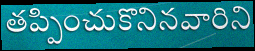
తప్పించుకొనినవారిని